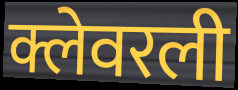
क्लेवरली